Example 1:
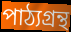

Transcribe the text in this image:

পাঠ্যগ্রন্থ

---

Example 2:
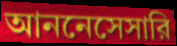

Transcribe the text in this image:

আননেসেসারি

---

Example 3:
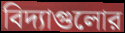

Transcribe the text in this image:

বিদ্যাগুলোর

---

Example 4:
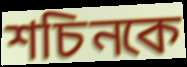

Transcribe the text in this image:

শচিনকে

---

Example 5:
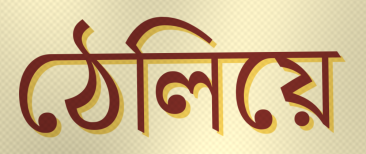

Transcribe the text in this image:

ঠেলিয়ে